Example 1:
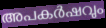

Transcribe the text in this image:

അപകർഷവും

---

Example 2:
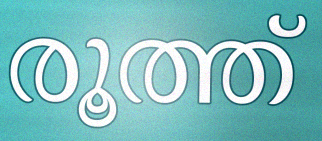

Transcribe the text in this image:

രൂത്ത്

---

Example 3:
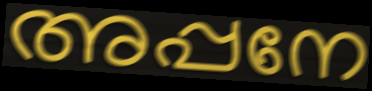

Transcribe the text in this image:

അപ്പനേ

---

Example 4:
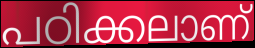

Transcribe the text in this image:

പഠിക്കലാണ്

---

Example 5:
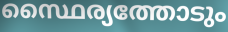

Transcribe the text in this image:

സ്ഥൈര്യത്തോടും